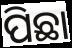
ପିଛା